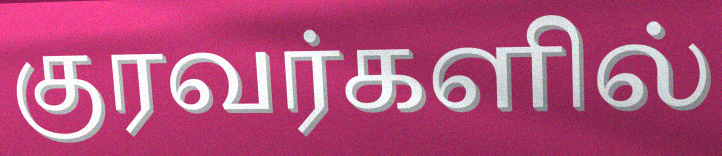
குரவர்களில்